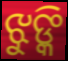
ଝୁଙ୍କି